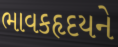
ભાવકહૃદયને